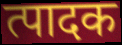
त्पादक